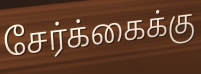
சேர்க்கைக்கு